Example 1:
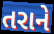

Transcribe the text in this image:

તરાને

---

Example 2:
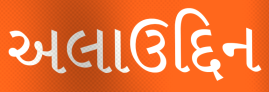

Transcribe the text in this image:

અલાઉદ્દિન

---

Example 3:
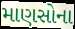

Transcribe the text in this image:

માણસોના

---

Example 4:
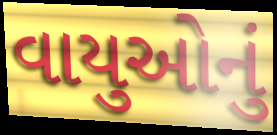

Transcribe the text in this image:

વાયુઓનું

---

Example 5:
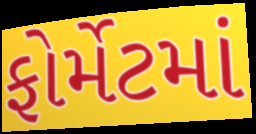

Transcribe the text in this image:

ફોર્મેટમાં